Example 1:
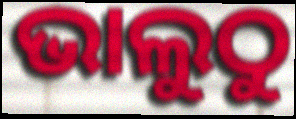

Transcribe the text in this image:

ଭାଲୁଠୁ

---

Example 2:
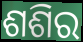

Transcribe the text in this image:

ଶଶିର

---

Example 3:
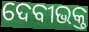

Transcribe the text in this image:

ଦେବୀଭକ୍ତ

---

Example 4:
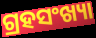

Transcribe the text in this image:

ଗ୍ରହସଂଖ୍ୟା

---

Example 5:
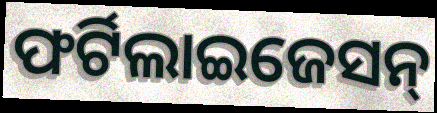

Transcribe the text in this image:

ଫର୍ଟିଲାଇଜେସନ୍